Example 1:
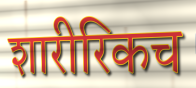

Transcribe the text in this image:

शारीरिकच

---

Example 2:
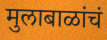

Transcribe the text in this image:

मुलाबाळांचं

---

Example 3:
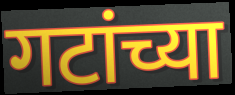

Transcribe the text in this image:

गटांच्या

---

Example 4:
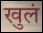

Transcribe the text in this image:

खुलं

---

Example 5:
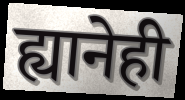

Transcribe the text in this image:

ह्यानेही